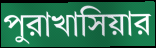
পুরাখাসিয়ার